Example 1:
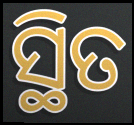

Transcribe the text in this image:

ସ୍ଥିତ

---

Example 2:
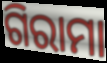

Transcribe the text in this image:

ଗିରାମା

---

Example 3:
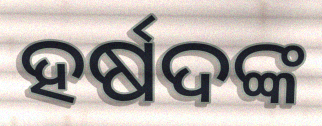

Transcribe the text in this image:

ହର୍ଷଦଙ୍କ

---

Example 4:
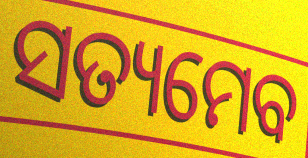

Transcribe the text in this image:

ସତ୍ୟମେବ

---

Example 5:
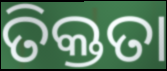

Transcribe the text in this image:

ତିକ୍ତତା